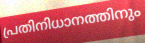
പ്രതിനിധാനത്തിനും